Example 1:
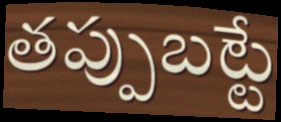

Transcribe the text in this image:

తప్పుబట్టే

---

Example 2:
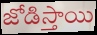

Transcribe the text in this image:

జోడిస్తాయి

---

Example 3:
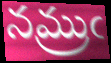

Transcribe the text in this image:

నమ్రుఁ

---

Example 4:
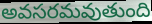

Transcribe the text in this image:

అవసరమవుతుంది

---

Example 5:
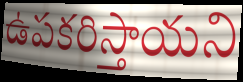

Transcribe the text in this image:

ఉపకరిస్తాయని